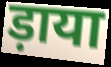
ड़ाया